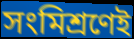
সংমিশ্রণেই